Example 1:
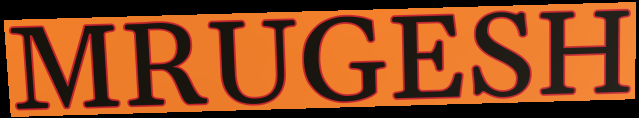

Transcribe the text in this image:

MRUGESH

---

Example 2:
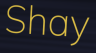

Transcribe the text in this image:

Shay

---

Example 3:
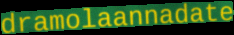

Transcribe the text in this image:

dramolaannadate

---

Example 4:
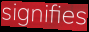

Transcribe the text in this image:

signifies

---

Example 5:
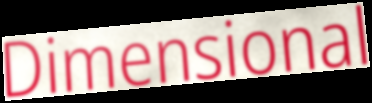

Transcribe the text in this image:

Dimensional